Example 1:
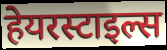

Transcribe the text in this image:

हेयरस्टाइल्स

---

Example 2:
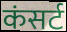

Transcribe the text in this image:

कंसर्ट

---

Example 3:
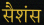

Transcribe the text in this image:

सैशंस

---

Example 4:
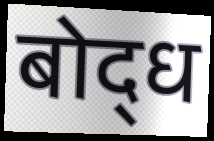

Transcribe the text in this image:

बोद्ध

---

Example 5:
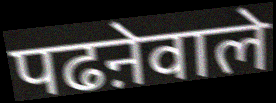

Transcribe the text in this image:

पढऩेवाले